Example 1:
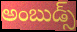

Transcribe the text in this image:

అంబుడ్స్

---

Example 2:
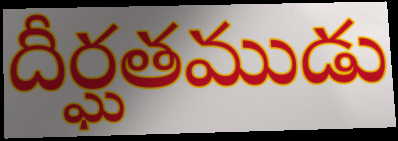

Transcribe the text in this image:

దీర్ఘతముడు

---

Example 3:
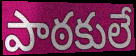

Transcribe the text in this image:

పాఠకులే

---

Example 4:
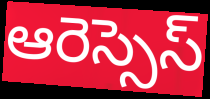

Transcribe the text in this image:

ఆరెస్సెస్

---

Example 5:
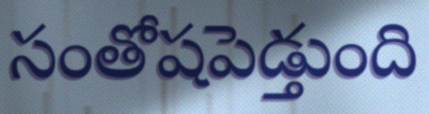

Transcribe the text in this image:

సంతోషపెడ్తుంది